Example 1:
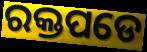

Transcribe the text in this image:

ରକ୍ତପଡେ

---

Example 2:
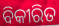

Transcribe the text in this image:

ବିକୀରିତ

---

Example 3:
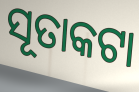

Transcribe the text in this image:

ସୂତାକଟା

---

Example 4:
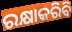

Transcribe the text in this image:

ରକ୍ଷାକରିବି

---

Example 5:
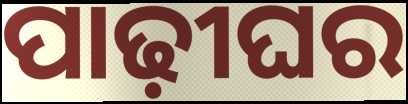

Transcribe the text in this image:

ପାଢ଼ୀଘର